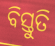
ବିସ୍ତୁତି